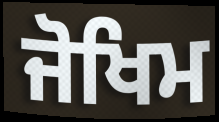
ਜੋਖਿਮ